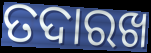
ତଦାରଖ